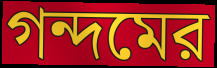
গন্দমের